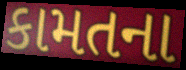
કામતના